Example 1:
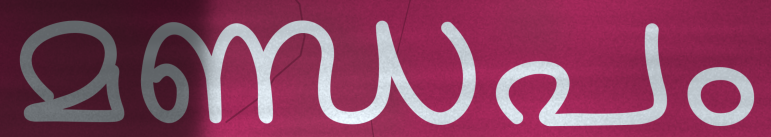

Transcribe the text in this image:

മണ്ഡപം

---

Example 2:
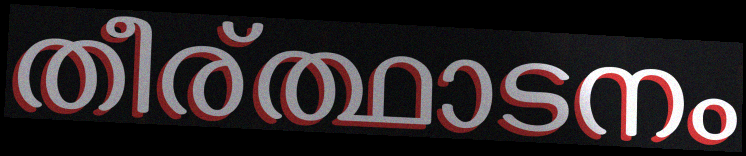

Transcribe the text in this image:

തീര്ത്ഥാടനം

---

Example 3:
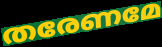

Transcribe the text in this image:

തരേണമേ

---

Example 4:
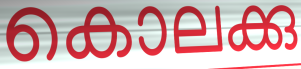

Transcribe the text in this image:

കൊലക്കു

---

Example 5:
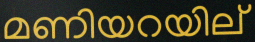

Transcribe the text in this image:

മണിയറയില്